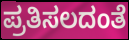
ಪ್ರತಿಸಲದಂತೆ